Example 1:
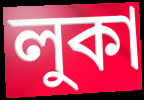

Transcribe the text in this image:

লুকা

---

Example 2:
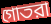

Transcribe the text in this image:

গোতরা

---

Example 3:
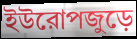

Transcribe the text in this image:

ইউরোপজুড়ে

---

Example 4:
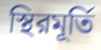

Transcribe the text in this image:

স্থিরমূর্তি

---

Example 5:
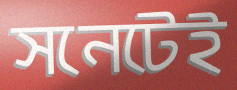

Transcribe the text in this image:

সনেটেই